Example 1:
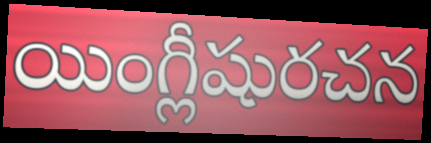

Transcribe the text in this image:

యింగ్లీషురచన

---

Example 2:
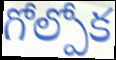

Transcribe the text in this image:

గోల్పోక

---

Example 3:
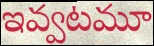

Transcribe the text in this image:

ఇవ్వటమూ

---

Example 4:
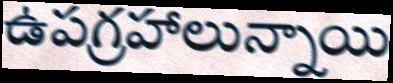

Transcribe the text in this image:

ఉపగ్రహాలున్నాయి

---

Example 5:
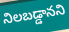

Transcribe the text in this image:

నిలబడ్డానని